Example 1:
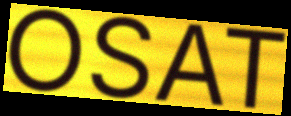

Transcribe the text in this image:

OSAT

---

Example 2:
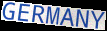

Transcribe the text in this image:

GERMANY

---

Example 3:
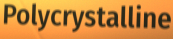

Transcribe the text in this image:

Polycrystalline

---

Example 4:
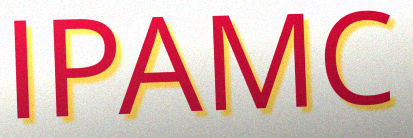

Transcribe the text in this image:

IPAMC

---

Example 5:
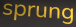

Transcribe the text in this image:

sprung